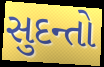
સુદન્તો